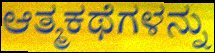
ಆತ್ಮಕಥೆಗಳನ್ನು